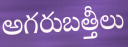
అగరుబత్తీలు